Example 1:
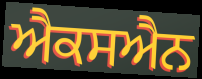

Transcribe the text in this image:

ਐਕਸਐਨ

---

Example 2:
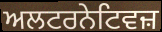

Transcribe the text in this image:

ਅਲਟਰਨੇਟਿਵਜ਼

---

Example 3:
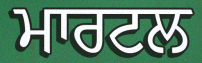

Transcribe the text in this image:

ਮਾਰਟਲ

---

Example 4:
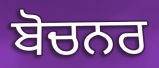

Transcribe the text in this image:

ਬੋਚਨਰ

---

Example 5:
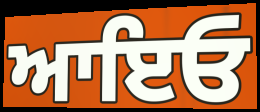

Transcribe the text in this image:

ਆਇਓ